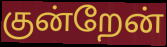
குன்றேன்